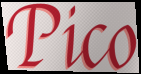
Pico